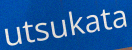
utsukata